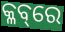
କ୍ଳବ୍‌ରେ